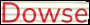
Dowse